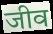
जीव